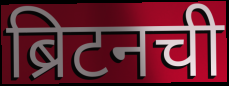
ब्रिटनची